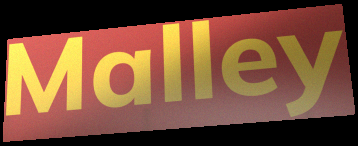
Malley